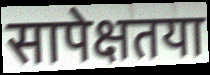
सापेक्षतया